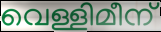
വെള്ളിമീന്